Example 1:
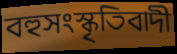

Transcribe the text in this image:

বহুসংস্কৃতিবাদী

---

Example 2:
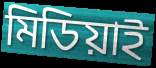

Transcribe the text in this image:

মিডিয়াই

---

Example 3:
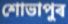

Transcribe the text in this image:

শোভাপুৰ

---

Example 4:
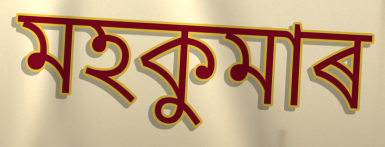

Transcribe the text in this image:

মহকুমাৰ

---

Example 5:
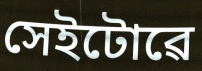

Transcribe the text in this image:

সেইটোৱে